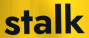
stalk